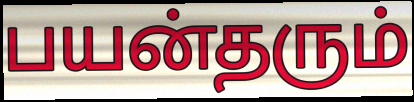
பயன்தரும்